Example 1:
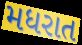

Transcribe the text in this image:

મધરાત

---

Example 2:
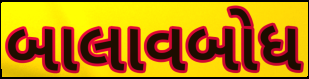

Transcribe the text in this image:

બાલાવબોધ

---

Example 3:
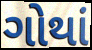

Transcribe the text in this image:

ગોથાં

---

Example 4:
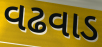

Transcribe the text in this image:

વઢવાડ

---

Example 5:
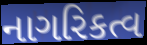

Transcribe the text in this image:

નાગરિકત્વ